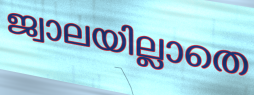
ജ്വാലയില്ലാതെ